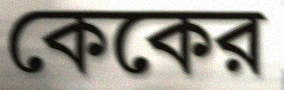
কেকের